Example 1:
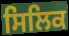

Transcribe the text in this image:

ਸਿਲਿਕ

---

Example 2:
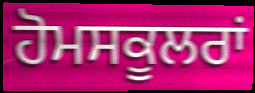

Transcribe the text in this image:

ਹੋਮਸਕੂਲਰਾਂ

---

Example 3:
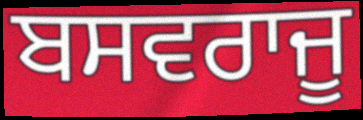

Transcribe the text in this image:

ਬਸਵਰਾਜੂ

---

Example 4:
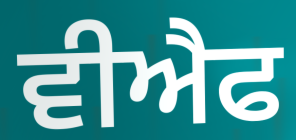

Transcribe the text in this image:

ਵੀਐਫ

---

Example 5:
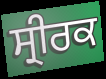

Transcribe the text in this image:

ਸ੍ਰੀਰਕ